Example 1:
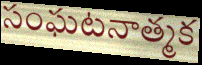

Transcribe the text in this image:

సంఘటనాత్మక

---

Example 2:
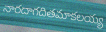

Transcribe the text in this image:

నారదాగదితమాకలయ్య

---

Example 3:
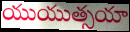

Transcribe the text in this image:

యుయుత్సయా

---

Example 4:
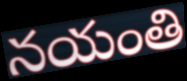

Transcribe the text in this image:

నయంతి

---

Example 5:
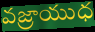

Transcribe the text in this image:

వజ్రాయుధ